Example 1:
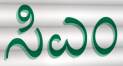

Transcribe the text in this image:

ಸಿಎಂ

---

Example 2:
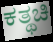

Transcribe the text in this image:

ಕತ್ಥಚಿ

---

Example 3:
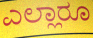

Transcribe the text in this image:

ಎಲ್ಲಾರೂ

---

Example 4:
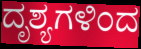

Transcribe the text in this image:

ದೃಶ್ಯಗಳಿಂದ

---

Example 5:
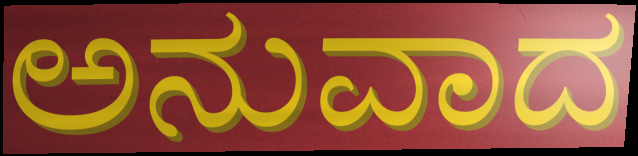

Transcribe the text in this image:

ಅನುವಾದ